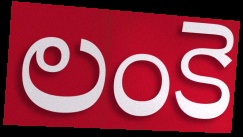
లంకె